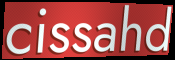
cissahd